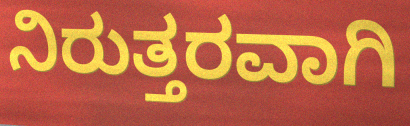
ನಿರುತ್ತರವಾಗಿ